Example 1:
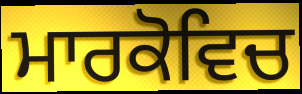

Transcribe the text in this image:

ਮਾਰਕੋਵਿਚ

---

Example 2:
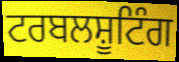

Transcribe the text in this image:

ਟਰਬਲਸ਼ੂਟਿੰਗ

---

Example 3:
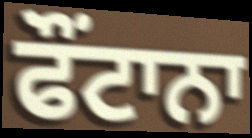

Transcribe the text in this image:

ਫੌਂਟਾਨਾ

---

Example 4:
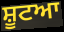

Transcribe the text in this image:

ਸ਼ੂਟਆ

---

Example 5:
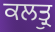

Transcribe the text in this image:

ਕਲਤ੍ਰੁ